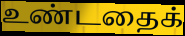
உண்டதைக்